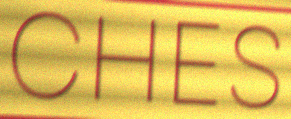
CHES